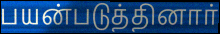
பயன்படுத்தினார்